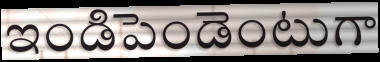
ఇండిపెండెంటుగా